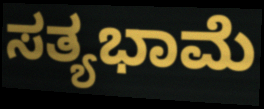
ಸತ್ಯಭಾಮೆ